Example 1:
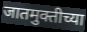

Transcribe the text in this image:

जातमुक्तीच्या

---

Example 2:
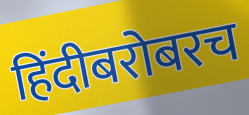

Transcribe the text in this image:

हिंदीबरोबरच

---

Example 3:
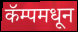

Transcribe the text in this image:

कॅम्पमधून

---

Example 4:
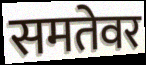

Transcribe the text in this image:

समतेवर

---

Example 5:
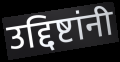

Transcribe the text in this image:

उद्दिष्टांनी